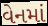
વેનમાં